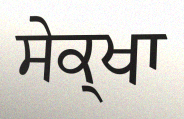
ਸੇਕ੍ਖਾ